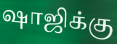
ஷாஜிக்கு